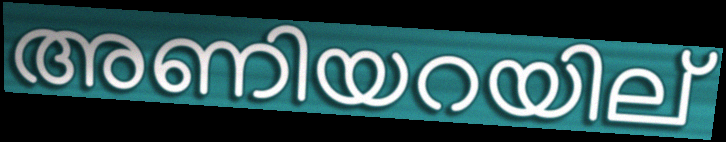
അണിയറയില്